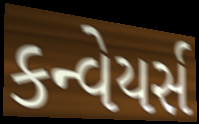
કન્વેયર્સ